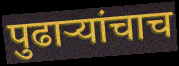
पुढाऱ्यांचाच